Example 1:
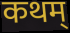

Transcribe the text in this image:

कथम्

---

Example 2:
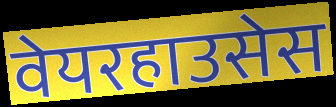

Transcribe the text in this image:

वेयरहाउसेस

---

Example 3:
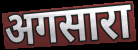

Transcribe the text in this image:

अगसारा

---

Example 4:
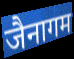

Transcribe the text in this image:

जैनागम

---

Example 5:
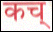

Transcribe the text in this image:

कच्